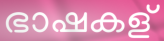
ഭാഷകള്